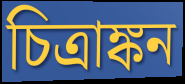
চিত্রাঙ্কন